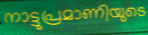
നാട്ടുപ്രമാണിയുടെ